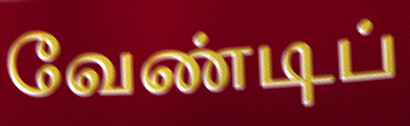
வேண்டிப்